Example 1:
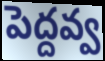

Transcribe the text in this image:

పెద్దవ్వ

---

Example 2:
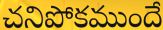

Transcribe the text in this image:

చనిపోకముందే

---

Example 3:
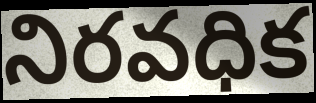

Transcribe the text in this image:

నిరవధిక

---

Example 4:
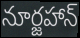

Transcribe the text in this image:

నూర్జహాన్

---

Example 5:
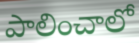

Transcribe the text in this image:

పాలించాలో